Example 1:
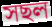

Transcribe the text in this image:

সছল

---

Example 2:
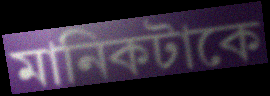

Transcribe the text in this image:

মানিকটাকে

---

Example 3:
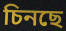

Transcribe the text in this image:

চিনছে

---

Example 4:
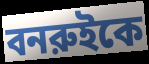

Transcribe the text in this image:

বনরুইকে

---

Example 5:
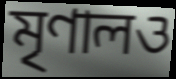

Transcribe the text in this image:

মৃণালও